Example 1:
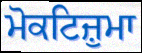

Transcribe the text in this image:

ਮੋਕਟਿਜ਼ੁਮਾ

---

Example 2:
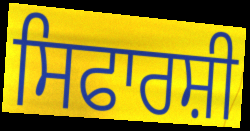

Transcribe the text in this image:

ਸਿਫਾਰਸ਼ੀ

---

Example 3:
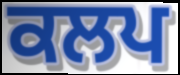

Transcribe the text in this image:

ਕਲਪ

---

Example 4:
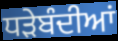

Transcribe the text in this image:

ਧੜੇਬੰਦੀਆਂ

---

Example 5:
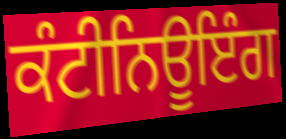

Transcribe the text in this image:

ਕੰਟੀਨਿਊਇੰਗ